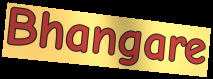
Bhangare